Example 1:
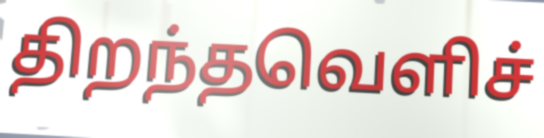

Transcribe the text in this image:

திறந்தவெளிச்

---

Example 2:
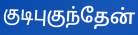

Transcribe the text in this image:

குடிபுகுந்தேன்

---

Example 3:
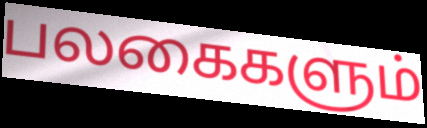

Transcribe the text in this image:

பலகைகளும்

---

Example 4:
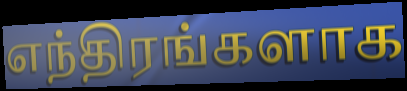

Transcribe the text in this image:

எந்திரங்களாக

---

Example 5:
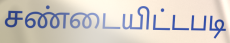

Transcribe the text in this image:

சண்டையிட்டபடி